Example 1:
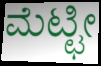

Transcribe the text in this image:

ಮೆಟ್ಟೀ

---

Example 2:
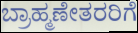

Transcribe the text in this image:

ಬ್ರಾಹ್ಮಣೇತರರಿಗೆ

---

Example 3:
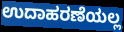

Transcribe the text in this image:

ಉದಾಹರಣೆಯಲ್ಲ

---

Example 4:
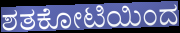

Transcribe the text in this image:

ಶತಕೋಟಿಯಿಂದ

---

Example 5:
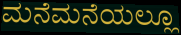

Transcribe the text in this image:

ಮನೆಮನೆಯಲ್ಲೂ